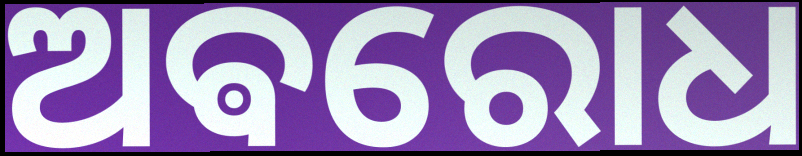
ଅଵରୋଧ